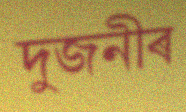
দুজনীৰ